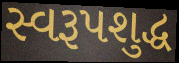
સ્વરૂપશુદ્ધ